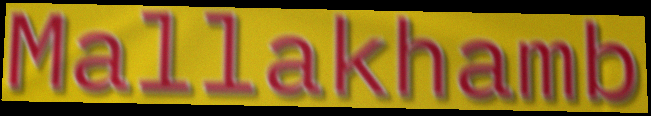
Mallakhamb